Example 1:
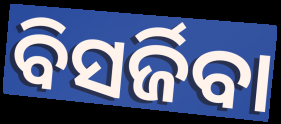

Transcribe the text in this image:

ବିସର୍ଜିବା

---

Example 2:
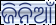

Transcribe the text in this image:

ଜିନିଆଁ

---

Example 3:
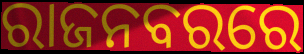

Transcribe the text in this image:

ରାଜନବରରେ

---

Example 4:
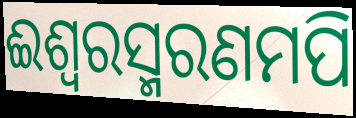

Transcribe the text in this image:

ଈଶ୍ଵରସ୍ମରଣମପି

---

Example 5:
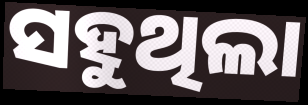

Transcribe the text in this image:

ସହୁଥିଲା